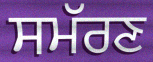
ਸਮੱਰਣ